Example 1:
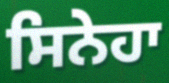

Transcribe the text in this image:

ਸਿਨੇਹਾ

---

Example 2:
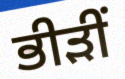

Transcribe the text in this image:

ਭੀੜੀਂ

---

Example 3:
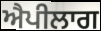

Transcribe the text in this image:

ਐਪੀਲਾਗ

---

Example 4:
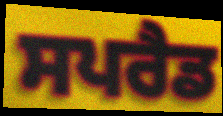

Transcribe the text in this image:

ਸਪਰੈਡ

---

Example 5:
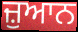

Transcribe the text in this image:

ਜ਼ੁਆਨ